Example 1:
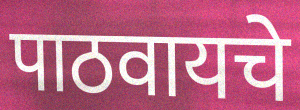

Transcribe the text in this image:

पाठवायचे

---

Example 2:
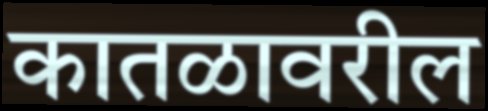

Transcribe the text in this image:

कातळावरील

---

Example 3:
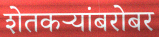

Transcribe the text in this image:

शेतकर्‍यांबरोबर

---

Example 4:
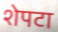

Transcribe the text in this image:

शेपटा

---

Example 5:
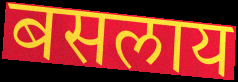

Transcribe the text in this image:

बसलाय